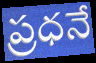
ప్రధనే